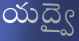
యద్వై